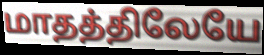
மாதத்திலேயே